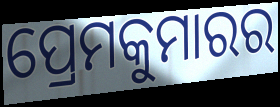
ପ୍ରେମକୁମାରର